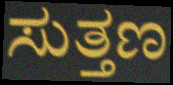
ಸುತ್ತಣ